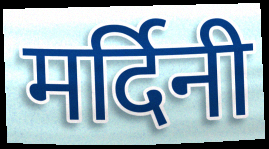
मर्दिनी